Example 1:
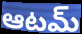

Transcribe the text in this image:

ఆటమ్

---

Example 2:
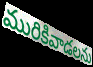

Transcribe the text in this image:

మురికివాడలను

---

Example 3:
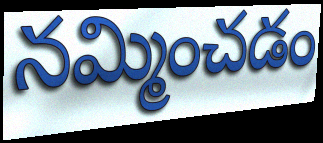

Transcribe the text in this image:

నమ్మించడం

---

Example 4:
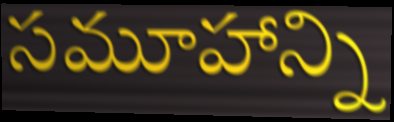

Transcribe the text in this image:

సమూహాన్ని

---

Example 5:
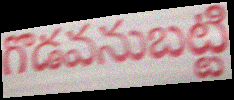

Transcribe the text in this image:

గొడవనుబట్టి